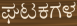
ಘಟಕಗಳ